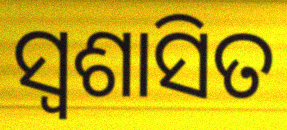
ସ୍ୱଶାସିତ